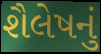
શૈલેષનું